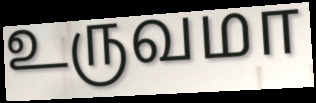
உருவமா